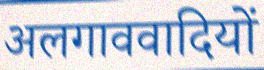
अलगाववादियों